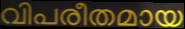
വിപരീതമായ